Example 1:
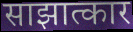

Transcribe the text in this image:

साझात्कार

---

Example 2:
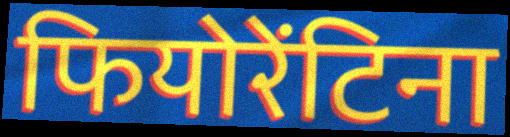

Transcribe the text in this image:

फियोरेंटिना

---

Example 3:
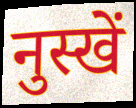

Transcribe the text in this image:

नुस्खें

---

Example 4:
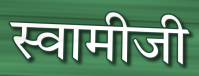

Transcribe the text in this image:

स्‍वामीजी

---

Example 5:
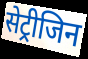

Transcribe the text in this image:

सेट्रीजिन